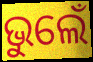
ଭୁଲେଁ